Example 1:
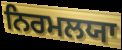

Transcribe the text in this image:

ਨਿਰਮਲਯਾ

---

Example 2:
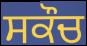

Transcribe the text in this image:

ਸਕੌਚ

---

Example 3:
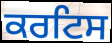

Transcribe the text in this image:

ਕਰਟਿਸ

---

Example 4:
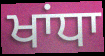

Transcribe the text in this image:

ਖਾਂਧਾ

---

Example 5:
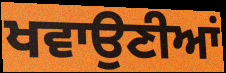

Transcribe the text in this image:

ਖਵਾਉਣੀਆਂ